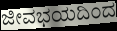
ಜೀವಭಯದಿಂದ